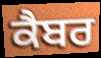
ਕੈਬਰ